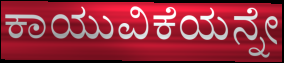
ಕಾಯುವಿಕೆಯನ್ನೇ